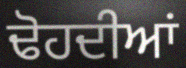
ਢੋਹਦੀਆਂ